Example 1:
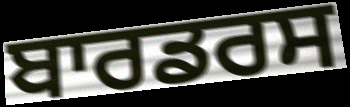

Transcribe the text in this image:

ਬਾਰਡਰਸ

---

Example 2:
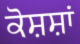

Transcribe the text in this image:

ਕੋਸ਼ਸ਼ਾਂ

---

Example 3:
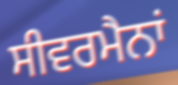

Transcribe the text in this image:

ਸੀਵਰਮੈਨਾਂ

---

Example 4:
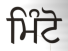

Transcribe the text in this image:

ਮਿੰਟੋ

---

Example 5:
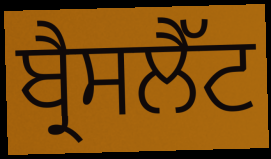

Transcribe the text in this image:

ਬ੍ਰੈਸਲੈੱਟ